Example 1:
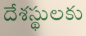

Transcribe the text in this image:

దేశస్థులకు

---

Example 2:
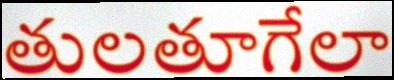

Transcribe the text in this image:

తులతూగేలా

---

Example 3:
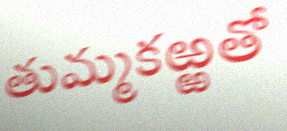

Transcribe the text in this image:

తుమ్మకఱ్ఱతో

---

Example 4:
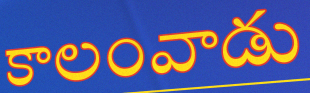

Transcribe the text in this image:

కాలంవాడు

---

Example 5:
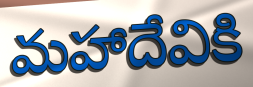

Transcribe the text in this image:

మహాదేవికి